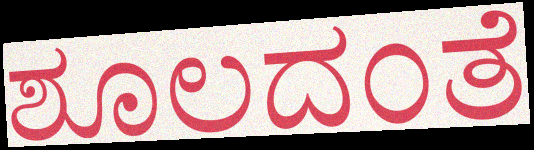
ಶೂಲದಂತೆ